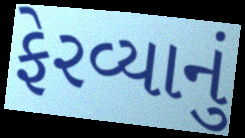
ફેરવ્યાનું